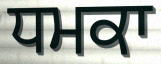
ਧਮਕਾ